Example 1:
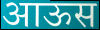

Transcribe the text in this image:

आऊस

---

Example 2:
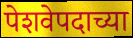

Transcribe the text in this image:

पेशवेपदाच्या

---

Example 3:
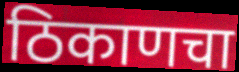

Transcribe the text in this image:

ठिकाणचा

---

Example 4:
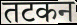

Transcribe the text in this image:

तटकन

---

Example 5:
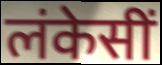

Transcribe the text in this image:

लंकेसीं